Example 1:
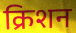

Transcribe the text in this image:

क्रिशन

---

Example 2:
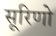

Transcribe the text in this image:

सूरिणो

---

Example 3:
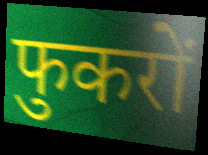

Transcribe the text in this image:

फुकरों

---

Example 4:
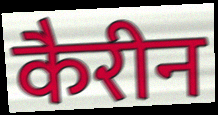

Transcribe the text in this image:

कैरीन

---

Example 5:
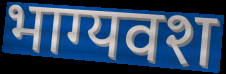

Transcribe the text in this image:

भाग्यवश